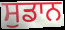
ਸੁਡਾਨ